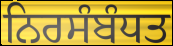
ਨਿਰਸੰਬੰਧਤ